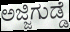
ಅಜ್ಜಿಗುಡ್ಡೆ